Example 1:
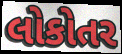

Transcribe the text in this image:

લોકોતર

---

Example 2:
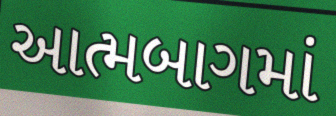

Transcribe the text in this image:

આત્મબાગમાં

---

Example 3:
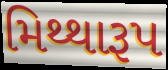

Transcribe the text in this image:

મિથ્થારૂપ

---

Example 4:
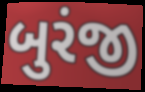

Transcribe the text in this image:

બુરંજી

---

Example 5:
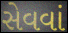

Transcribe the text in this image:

સેવવાં